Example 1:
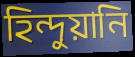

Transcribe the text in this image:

হিন্দুয়ানি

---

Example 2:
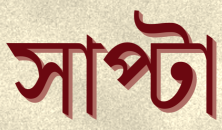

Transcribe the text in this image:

সাপ্টা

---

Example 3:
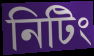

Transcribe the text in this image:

নিটিং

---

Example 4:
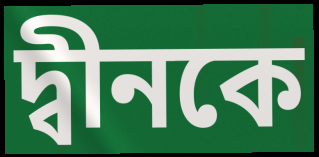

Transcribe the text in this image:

দ্বীনকে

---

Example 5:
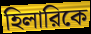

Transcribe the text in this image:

হিলারিকে